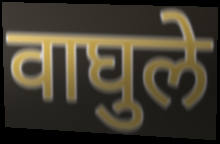
वाघुले